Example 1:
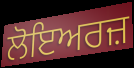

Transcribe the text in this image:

ਲੋਇਅਰਜ਼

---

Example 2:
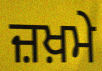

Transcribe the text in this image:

ਜ਼ਖ਼ਮੇ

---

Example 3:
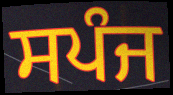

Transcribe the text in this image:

ਸਪੰਜ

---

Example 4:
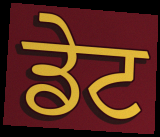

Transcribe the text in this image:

ਡੇਟ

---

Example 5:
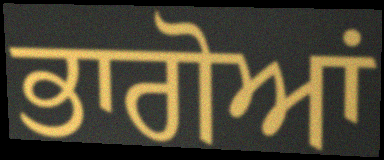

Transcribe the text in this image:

ਭਾਗੋਆਂ